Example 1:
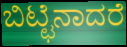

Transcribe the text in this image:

ಬಿಟ್ಟೆನಾದರೆ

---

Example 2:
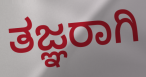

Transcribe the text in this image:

ತಜ್ಞರಾಗಿ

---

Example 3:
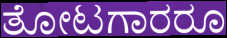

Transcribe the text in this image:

ತೋಟಗಾರರೂ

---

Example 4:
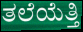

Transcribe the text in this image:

ತಲೆಯೆತ್ತಿ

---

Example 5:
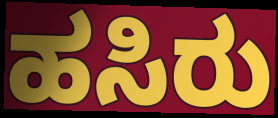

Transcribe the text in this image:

ಹಸಿರು